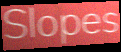
Slopes